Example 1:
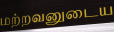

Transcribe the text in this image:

மற்றவனுடைய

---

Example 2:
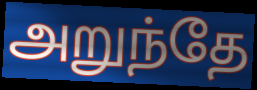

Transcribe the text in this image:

அறுந்தே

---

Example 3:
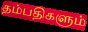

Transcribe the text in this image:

தம்பதிகளும்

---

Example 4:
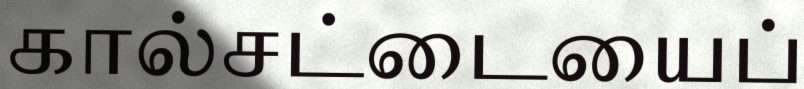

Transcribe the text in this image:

கால்சட்டையைப்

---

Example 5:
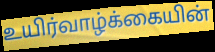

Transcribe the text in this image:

உயிர்வாழ்க்கையின்